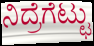
ನಿದ್ರೆಗೆಟ್ಟು